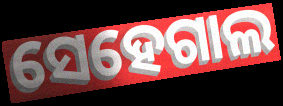
ସେହେଗାଲ